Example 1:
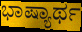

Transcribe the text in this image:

ಭಾಷ್ಯಾರ್ಥ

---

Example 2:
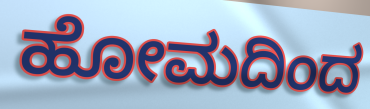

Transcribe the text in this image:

ಹೋಮದಿಂದ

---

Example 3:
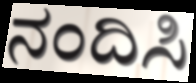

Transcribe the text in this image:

ನಂದಿಸಿ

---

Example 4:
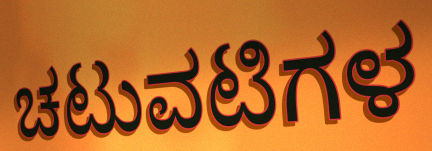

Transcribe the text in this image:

ಚಟುವಟಿಗಳ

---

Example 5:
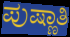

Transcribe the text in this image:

ಪುಷ್ಣಾತಿ